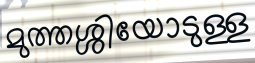
മുത്തശ്ശിയോടുള്ള